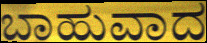
ಬಾಹುವಾದ